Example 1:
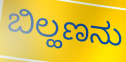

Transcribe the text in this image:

ಬಿಲ್ಹಣನು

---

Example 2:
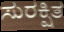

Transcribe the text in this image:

ಸುರಕ್ಷಿತ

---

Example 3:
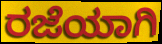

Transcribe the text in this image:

ರಜೆಯಾಗಿ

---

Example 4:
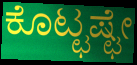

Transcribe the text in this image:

ಕೊಟ್ಟಷ್ಟೇ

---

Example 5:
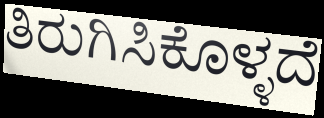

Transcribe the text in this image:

ತಿರುಗಿಸಿಕೊಳ್ಳದೆ